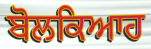
ਬੋਲਕਿਆਹ